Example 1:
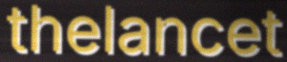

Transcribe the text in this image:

thelancet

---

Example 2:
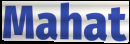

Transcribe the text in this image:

Mahat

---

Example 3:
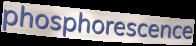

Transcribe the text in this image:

phosphorescence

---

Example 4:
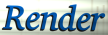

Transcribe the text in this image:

Render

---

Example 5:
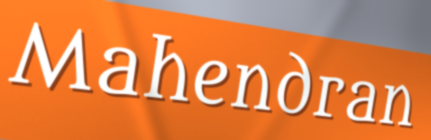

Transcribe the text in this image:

Mahendran